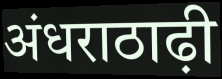
अंधराठाढ़ी